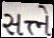
સત્ત્ને